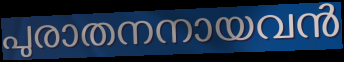
പുരാതനനായവൻ